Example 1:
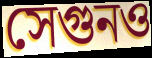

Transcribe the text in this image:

সেগুনও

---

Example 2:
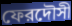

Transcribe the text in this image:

ফেরদৌসী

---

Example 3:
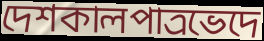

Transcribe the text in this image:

দেশকালপাত্রভেদে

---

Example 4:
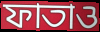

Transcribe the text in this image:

ফাতাও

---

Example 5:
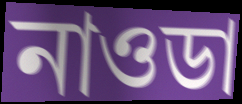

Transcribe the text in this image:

নাওডা